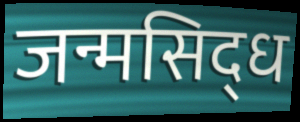
जन्मसिद्ध